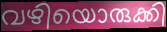
വഴിയൊരുക്കി